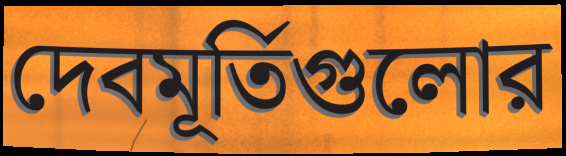
দেবমূর্তিগুলোর